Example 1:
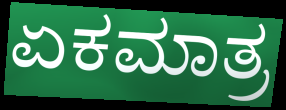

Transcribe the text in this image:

ಏಕಮಾತ್ರ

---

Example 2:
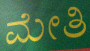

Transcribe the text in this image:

ಮೇತಿ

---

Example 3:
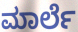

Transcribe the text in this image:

ಮಾರ್ಲೆ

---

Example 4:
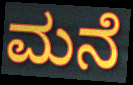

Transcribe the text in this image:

ಮನೆ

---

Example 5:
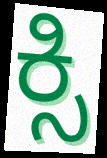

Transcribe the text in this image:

ಕ್ಸಿ